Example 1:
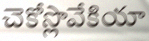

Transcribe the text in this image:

చెకోస్లొవేకియా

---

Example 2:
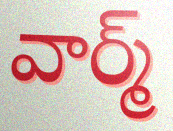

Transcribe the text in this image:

వార్మ్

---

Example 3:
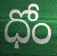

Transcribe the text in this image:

ధోం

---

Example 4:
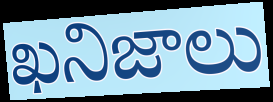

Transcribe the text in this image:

ఖనిజాలు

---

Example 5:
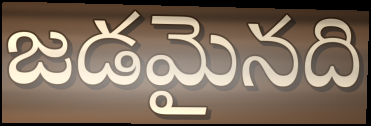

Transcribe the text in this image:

జడమైనది